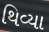
થિવ્યા